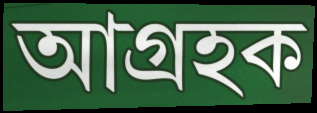
আগ্ৰহক